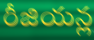
రీజియన్ల